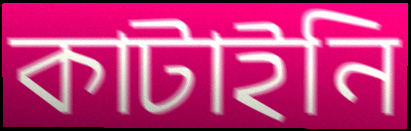
কাটাইনি